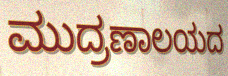
ಮುದ್ರಣಾಲಯದ